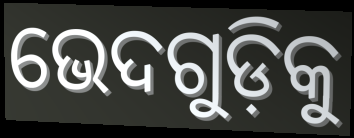
ଭେଦଗୁଡ଼ିକୁ